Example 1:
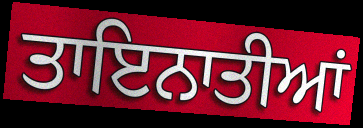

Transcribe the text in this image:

ਤਾਇਨਾਤੀਆਂ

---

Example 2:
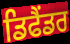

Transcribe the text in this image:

ਡਿਫੈਂਡਰ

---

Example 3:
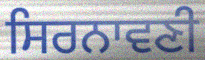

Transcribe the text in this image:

ਸਿਰਨਾਵਣੀ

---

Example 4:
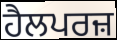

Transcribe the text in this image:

ਹੈਲਪਰਜ਼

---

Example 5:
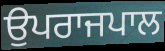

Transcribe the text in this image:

ਉਪਰਾਜਪਾਲ